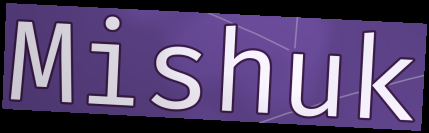
Mishuk